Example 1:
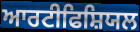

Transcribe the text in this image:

ਆਰਟੀਫਿਸ਼ਿਯਲ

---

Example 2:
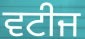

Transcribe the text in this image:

ਵਟੀਜ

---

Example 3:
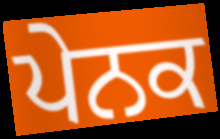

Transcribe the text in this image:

ਪੇਨਕ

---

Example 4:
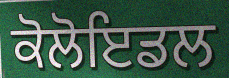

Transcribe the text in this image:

ਕੋਲੋਇਡਲ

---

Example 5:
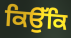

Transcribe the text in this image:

ਕਿਉੱਕਿ